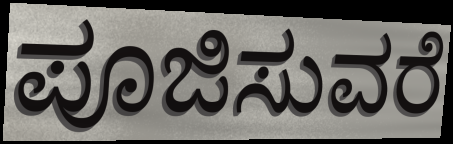
ಪೂಜಿಸುವರೆ